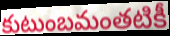
కుటుంబమంతటికీ